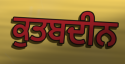
ਕੁਤਬਦੀਨ